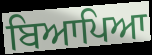
ਬਿਆਪਿਆ